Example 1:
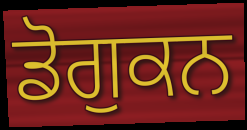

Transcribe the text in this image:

ਡੋਗੁਕਨ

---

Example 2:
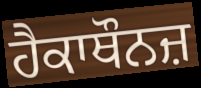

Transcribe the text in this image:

ਹੈਕਾਥੌਨਜ਼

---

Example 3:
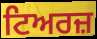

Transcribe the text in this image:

ਟਿਅਰਜ਼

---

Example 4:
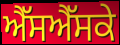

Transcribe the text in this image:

ਐੱਸਐੱਸਕੇ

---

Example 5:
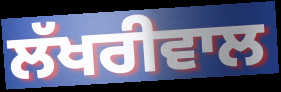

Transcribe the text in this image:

ਲੱਖਰੀਵਾਲ